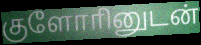
குளோரினுடன்